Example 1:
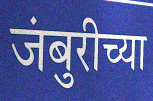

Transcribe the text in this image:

जंबुरीच्या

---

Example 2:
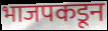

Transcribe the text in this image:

भाजपकडून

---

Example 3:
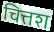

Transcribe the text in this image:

चित्तश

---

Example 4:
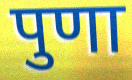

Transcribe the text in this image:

पुणा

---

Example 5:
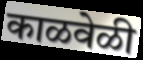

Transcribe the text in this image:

काळवेळी